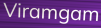
Viramgam